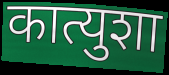
कात्युशा